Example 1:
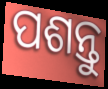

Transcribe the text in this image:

ପଶନ୍ତୁ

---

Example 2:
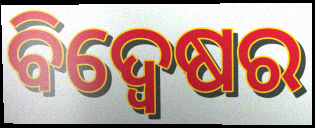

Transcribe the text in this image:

ବିଦ୍ୱେଷର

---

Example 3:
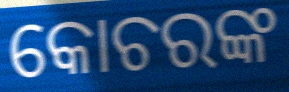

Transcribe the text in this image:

କୋଚରଙ୍କ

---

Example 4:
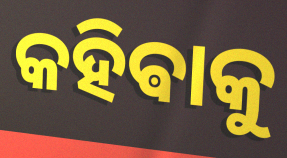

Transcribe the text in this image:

କହିଵାକୁ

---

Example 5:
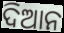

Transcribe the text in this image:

ଦିଆନ